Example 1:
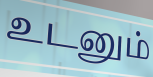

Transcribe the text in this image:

உடனும்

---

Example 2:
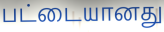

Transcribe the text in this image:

பட்டையானது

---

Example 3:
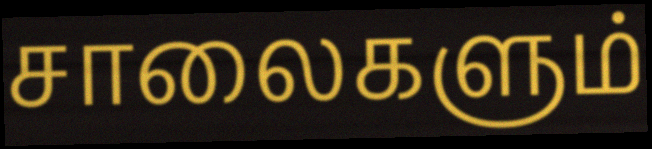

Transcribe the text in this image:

சாலைகளும்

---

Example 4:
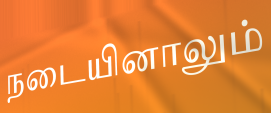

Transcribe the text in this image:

நடையினாலும்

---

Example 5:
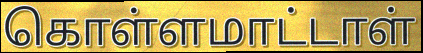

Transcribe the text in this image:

கொள்ளமாட்டாள்